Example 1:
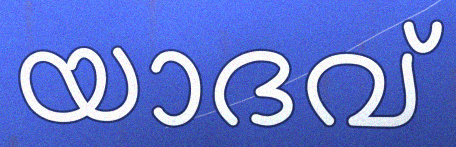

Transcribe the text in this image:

യാദവ്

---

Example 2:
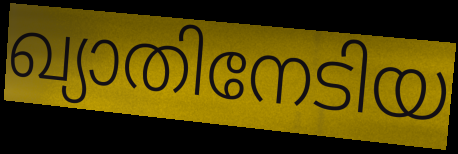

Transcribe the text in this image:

ഖ്യാതിനേടിയ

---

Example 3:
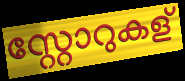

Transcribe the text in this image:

സ്റ്റോറുകള്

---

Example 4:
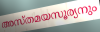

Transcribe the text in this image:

അസ്തമയസൂര്യനും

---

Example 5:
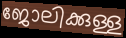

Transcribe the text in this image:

ജോലിക്കുള്ള